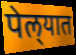
पेल्यात